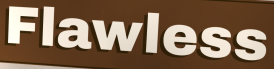
Flawless